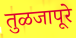
तुळजापूरे